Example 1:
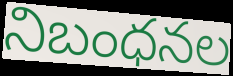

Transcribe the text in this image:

నిబంధనల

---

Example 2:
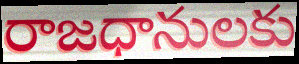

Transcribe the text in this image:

రాజధానులకు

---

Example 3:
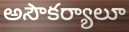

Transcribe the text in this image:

అసౌకర్యాలూ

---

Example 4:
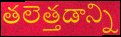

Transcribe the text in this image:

తలెత్తడాన్ని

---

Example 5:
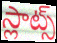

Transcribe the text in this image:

స్లాట్స్